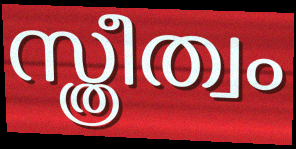
സ്ത്രീത്വം